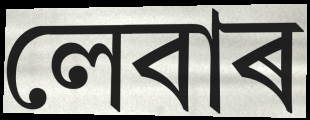
লেবাৰ